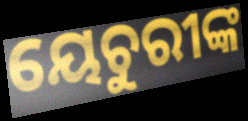
ୟେଚୁରୀଙ୍କ